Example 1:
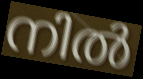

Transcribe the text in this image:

നിൽ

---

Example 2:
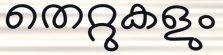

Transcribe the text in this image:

തെറ്റുകളും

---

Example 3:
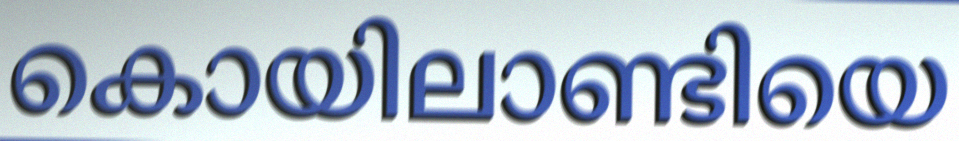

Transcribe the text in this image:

കൊയിലാണ്ടിയെ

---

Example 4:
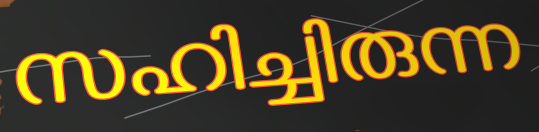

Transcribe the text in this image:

സഹിച്ചിരുന്ന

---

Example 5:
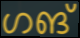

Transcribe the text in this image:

ഗങ്